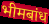
भीमबांध